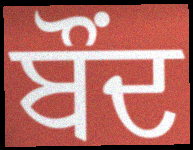
ਬੌਂਦ